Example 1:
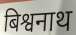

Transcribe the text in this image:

बिश्वनाथ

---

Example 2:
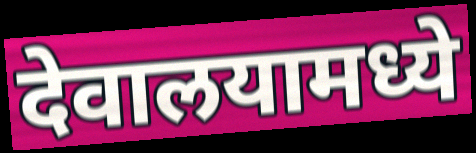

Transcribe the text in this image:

देवालयामध्ये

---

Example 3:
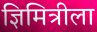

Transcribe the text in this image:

ज्ञिमित्रीला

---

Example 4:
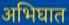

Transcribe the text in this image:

अभिघात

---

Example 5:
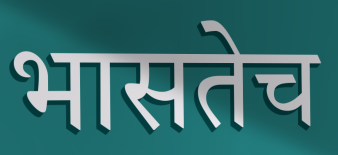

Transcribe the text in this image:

भासतेच